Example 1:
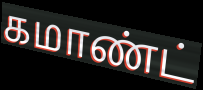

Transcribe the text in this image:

கமாண்ட்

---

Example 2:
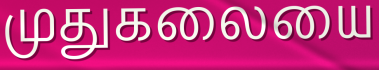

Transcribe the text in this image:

முதுகலையை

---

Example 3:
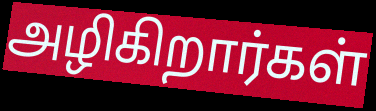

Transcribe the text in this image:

அழிகிறார்கள்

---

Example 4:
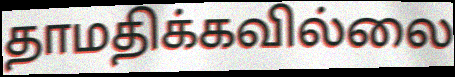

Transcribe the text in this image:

தாமதிக்கவில்லை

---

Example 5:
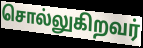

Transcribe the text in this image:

சொல்லுகிறவர்